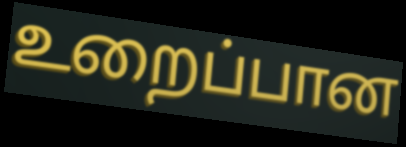
உறைப்பான